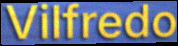
Vilfredo